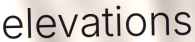
elevations